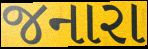
જનારા